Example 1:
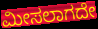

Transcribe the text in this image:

ಮೀಸಲಾಗದೇ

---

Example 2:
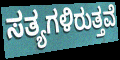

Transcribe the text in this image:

ಸತ್ಯಗಳಿರುತ್ತವೆ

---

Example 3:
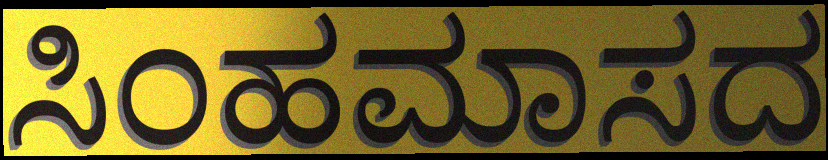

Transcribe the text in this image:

ಸಿಂಹಮಾಸದ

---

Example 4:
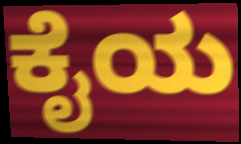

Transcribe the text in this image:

ಕೈಯ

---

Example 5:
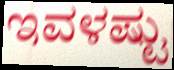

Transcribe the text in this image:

ಇವಳಷ್ಟು